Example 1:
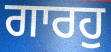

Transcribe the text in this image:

ਗਾਰਹੁ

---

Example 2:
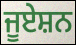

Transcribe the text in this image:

ਜੂਏਸ਼ਨ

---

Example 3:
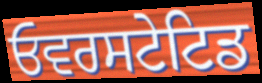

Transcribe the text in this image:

ਓਵਰਸਟੇਟਿਡ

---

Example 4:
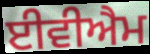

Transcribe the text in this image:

ਈਵੀਐਮ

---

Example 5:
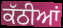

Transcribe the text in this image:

ਕੱਠੀਆਂ